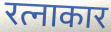
रत्नाकार